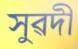
সুৱদী